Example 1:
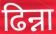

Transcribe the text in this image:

ढिन्ना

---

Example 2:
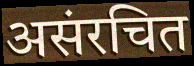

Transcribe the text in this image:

असंरचित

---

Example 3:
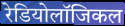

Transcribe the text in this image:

रेडियोलॉजिकल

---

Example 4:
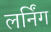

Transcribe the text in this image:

लर्निंग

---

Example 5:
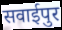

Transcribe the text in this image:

सवाईपुर